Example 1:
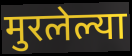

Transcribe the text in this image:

मुरलेल्या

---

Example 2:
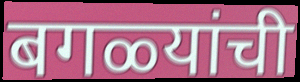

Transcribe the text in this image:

बगळ्यांची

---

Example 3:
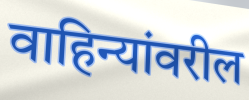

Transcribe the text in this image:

वाहिन्यांवरील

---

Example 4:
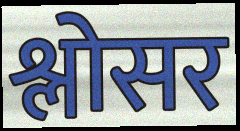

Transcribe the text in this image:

श्लोसर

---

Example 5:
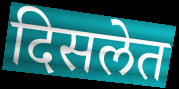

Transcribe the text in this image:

दिसलेत